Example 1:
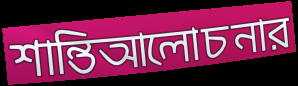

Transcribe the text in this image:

শান্তিআলোচনার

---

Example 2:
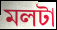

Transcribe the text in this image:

মলটা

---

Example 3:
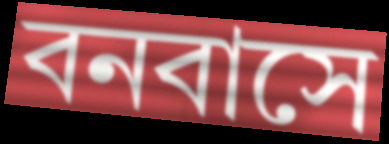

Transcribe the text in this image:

বনবাসে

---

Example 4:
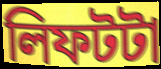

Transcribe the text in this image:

লিফটটা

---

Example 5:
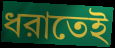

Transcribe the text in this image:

ধরাতেই